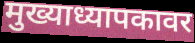
मुख्याध्यापकावर